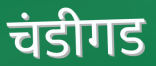
चंडीगड